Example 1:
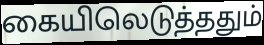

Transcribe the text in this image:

கையிலெடுத்ததும்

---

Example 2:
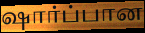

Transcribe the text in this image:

ஷார்ப்பான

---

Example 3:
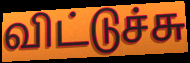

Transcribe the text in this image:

விட்டுச்சு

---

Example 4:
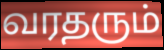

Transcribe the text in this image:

வரதரும்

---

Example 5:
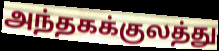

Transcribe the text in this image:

அந்தகக்குலத்து